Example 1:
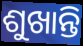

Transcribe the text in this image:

ଶୁଖାନ୍ତି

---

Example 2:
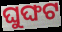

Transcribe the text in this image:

ଘୁଙ୍ଘଟ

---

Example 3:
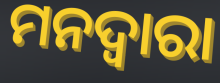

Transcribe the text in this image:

ମନଦ୍ଵାରା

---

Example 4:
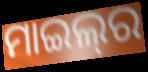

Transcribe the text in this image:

ମାଇଲ୍‍ର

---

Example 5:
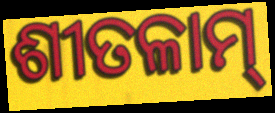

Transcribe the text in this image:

ଶୀତଳାମ୍